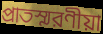
প্রাতস্মরণীয়া